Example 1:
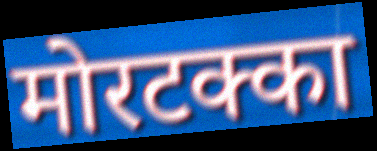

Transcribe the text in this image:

मोरटक्का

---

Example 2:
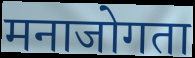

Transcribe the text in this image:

मनाजोगता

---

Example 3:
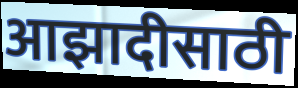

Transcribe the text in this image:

आझादीसाठी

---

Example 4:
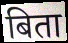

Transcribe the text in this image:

बिता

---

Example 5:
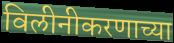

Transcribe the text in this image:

विलीनीकरणाच्या